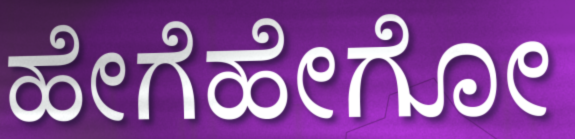
ಹೇಗೆಹೇಗೋ